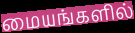
மையங்களில்